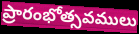
ప్రారంభోత్సవములు